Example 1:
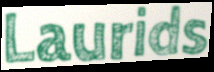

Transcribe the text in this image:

Laurids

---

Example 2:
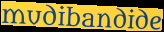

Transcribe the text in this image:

mudibandide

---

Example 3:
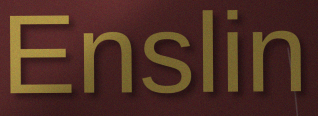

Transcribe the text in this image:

Enslin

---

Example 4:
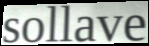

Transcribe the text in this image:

sollave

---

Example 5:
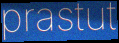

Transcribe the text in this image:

prastut